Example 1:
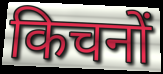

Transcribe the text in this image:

किचनों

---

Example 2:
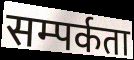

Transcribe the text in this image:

सम्पर्कता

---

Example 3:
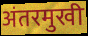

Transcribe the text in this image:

अंतरमुखी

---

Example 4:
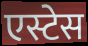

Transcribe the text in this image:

एस्टेस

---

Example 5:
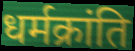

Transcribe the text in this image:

धर्मक्रांति